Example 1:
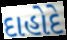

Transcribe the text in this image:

દાહોદે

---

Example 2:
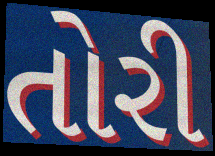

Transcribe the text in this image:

તોરી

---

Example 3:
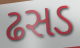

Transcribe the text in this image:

ઢસડ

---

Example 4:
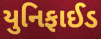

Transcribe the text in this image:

યુનિફાઈડ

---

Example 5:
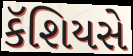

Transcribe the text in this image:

કૅશિયસે